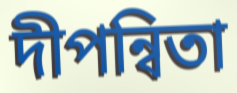
দীপন্বিতা